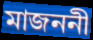
মাজননী